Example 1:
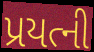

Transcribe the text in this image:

પ્રયત્ની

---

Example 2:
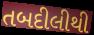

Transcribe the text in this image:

તબદીલીથી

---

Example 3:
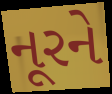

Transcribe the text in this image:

નૂરને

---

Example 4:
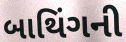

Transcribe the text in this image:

બાથિંગની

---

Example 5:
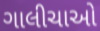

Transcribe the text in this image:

ગાલીચાઓ